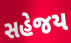
સહેજય